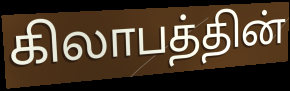
கிலாபத்தின்